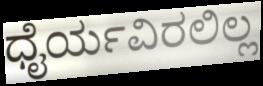
ಧೈರ್ಯವಿರಲಿಲ್ಲ